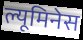
ल्यूमिनेस